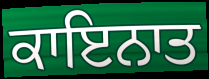
ਕਾਇਨਾਤ